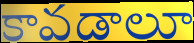
కావడాలూ